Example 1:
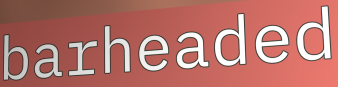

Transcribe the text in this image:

barheaded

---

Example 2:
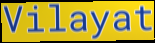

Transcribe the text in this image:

Vilayat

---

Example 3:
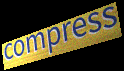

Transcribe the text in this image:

compress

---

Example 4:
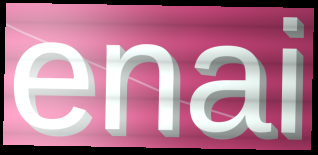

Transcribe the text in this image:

enai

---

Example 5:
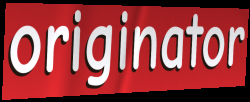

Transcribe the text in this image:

originator